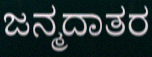
ಜನ್ಮದಾತರ